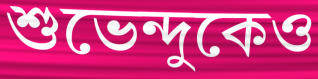
শুভেন্দুকেও